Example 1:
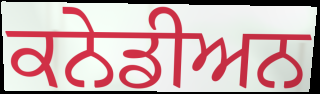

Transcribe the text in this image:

ਕਨੇਡੀਅਨ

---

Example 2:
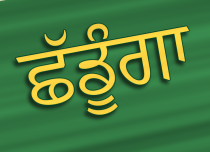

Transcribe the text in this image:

ਛੱਡੂੰਗਾ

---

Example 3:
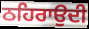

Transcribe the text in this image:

ਠਹਿਰਾਉਦੀ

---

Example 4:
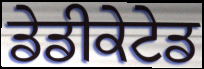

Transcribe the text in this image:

ਡੇਡੀਕੇਟੇਡ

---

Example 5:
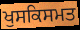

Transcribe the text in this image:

ਖੁਸਕਿਸਮਤ